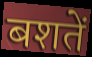
बशतें